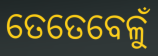
ତେତେବେଳୁଁ